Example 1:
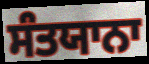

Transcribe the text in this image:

ਸੰਤਯਾਨਾ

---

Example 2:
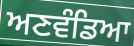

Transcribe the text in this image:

ਅਣਵੰਡਿਆ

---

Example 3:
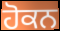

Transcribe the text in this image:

ਹੋਕਨ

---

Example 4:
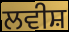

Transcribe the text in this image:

ਲਵੀਸ਼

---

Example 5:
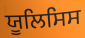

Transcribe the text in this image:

ਯੂਲਿਸਿਸ